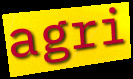
agri